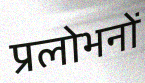
प्रलोभनों